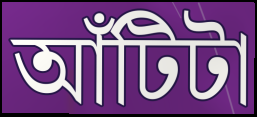
আঁটিটা